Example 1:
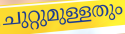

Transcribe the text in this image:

ചുറ്റുമുള്ളതും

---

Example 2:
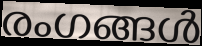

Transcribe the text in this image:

രംഗങ്ങൾ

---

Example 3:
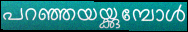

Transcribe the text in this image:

പറഞ്ഞയയ്ക്കുമ്പോൾ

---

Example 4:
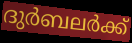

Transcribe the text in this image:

ദുർബലർക്ക്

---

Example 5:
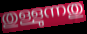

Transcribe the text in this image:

തുള്ളുന്നതു